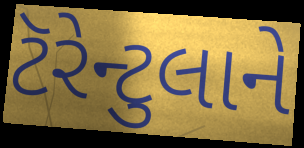
ટૅરેન્ટુલાને